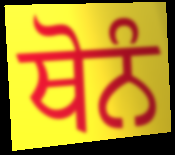
ਥੋਨੰ